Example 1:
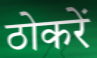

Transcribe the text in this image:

ठोकरें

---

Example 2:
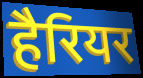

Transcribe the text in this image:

हैरियर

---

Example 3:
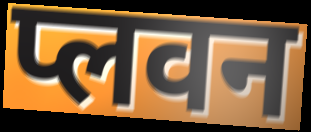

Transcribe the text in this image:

प्लवन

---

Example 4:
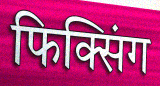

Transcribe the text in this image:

फिक्सिंग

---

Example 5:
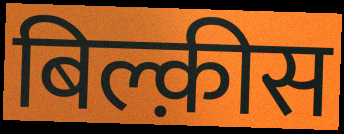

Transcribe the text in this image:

बिल्क़ीस